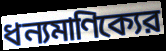
ধন্যমাণিক্যের